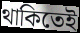
থাকিতেই